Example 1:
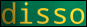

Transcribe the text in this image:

disso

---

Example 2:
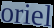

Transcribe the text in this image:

oriel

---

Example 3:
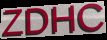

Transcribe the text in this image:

ZDHC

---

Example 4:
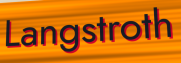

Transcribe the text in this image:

Langstroth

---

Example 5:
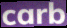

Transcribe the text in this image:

carb